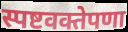
स्पष्टवक्तेपणा